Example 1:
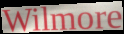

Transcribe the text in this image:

Wilmore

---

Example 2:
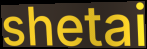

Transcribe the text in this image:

shetai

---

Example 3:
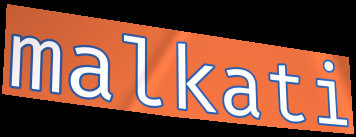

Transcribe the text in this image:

malkati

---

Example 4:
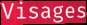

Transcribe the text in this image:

Visages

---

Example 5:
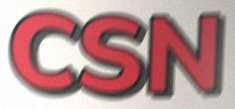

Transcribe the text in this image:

CSN